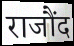
राजौंद